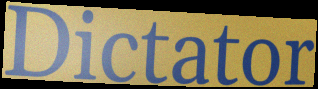
Dictator